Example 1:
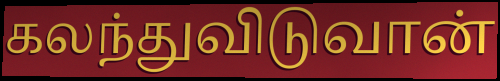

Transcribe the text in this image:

கலந்துவிடுவான்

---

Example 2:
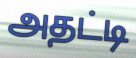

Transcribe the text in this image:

அதட்டி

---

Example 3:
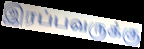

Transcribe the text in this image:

இரப்பவருக்கு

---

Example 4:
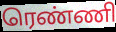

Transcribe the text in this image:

ரெண்ணி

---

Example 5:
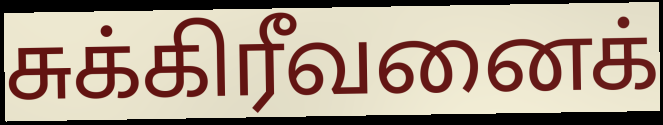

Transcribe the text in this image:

சுக்கிரீவனைக்